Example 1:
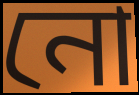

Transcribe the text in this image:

নো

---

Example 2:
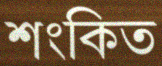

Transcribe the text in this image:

শংকিত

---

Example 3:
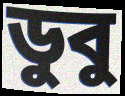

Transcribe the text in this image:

ডুবু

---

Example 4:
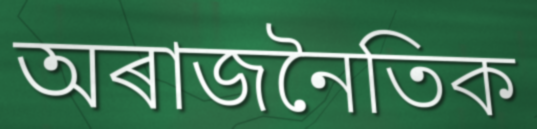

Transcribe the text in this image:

অৰাজনৈতিক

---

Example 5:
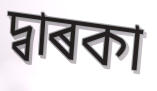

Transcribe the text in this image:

দ্বাৰকা